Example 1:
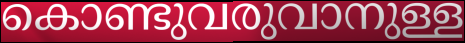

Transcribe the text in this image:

കൊണ്ടുവരുവാനുള്ള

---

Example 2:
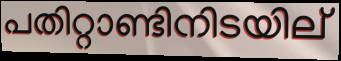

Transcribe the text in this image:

പതിറ്റാണ്ടിനിടയില്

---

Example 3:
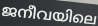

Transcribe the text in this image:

ജനീവയിലെ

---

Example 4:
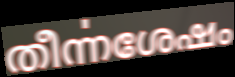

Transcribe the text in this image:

തീൎന്നശേഷം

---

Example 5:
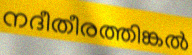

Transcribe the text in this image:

നദീതീരത്തിങ്കൽ